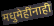
मधुमेहींनाही